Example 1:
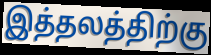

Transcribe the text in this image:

இத்தலத்திற்கு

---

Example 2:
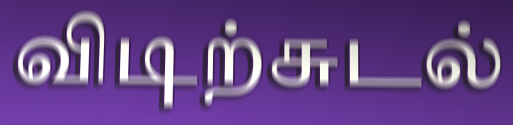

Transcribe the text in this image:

விடிற்சுடல்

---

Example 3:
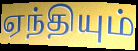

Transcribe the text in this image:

ஏந்தியும்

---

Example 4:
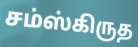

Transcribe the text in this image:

சம்ஸ்கிருத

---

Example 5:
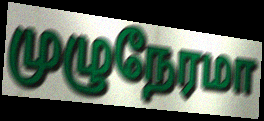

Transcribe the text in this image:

முழுநேரமா